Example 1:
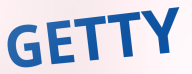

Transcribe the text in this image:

GETTY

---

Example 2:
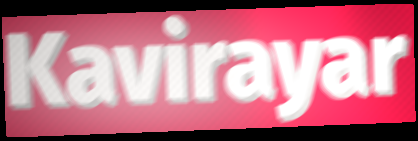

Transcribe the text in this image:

Kavirayar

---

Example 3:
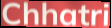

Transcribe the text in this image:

Chhatri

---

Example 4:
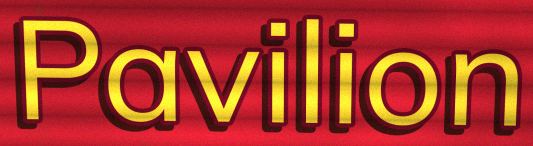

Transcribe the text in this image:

Pavilion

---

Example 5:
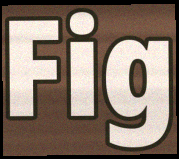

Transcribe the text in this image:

Fig